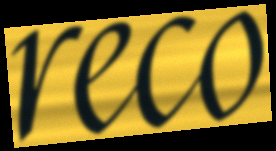
reco